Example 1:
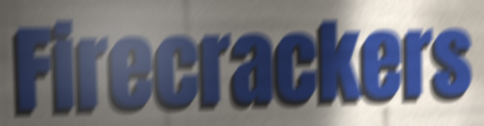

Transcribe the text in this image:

Firecrackers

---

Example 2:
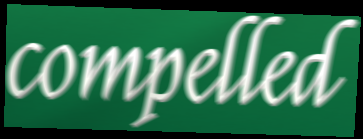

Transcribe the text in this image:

compelled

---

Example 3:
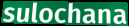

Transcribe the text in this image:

sulochana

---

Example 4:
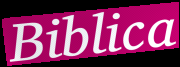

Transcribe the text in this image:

Biblica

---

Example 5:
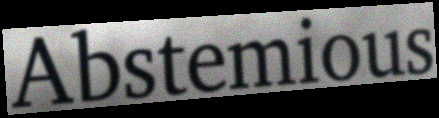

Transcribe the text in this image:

Abstemious